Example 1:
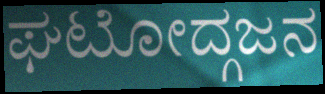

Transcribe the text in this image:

ಘಟೋದ್ಗಜನ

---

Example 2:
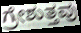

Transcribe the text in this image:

ಗ್ರೇಶುತ್ತವು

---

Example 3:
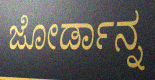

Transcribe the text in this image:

ಜೋರ್ಡಾನ್ನ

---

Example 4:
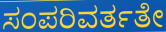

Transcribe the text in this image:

ಸಂಪರಿವರ್ತತೇ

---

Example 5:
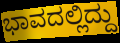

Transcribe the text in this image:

ಭಾವದಲ್ಲಿದ್ದು